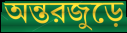
অন্তরজুড়ে